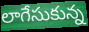
లాగేసుకున్న